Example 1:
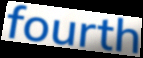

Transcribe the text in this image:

fourth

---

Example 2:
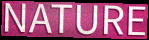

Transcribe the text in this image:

NATURE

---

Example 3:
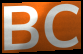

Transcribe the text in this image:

BC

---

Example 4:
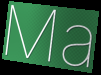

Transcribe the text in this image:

Ma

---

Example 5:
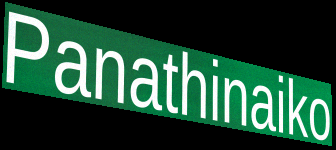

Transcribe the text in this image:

Panathinaiko